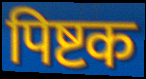
पिष्टक